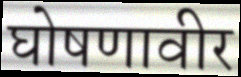
घोषणावीर